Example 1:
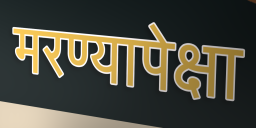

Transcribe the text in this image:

मरण्यापेक्षा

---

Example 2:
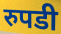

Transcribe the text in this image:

रुपडी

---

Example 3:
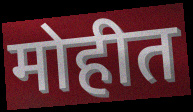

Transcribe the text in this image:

मोहीत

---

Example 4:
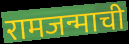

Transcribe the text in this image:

रामजन्माची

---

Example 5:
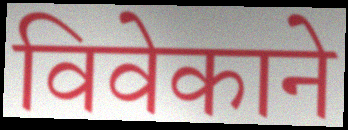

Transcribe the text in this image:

विवेकाने